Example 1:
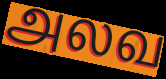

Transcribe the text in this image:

அலவ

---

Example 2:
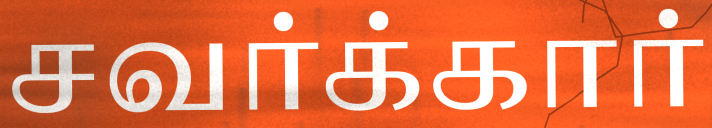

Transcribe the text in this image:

சவர்க்கார்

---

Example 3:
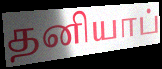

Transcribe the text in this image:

தனியாப்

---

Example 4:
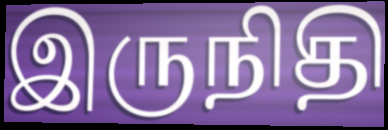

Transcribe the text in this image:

இருநிதி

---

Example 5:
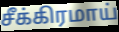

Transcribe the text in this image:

சீக்கிரமாய்